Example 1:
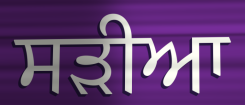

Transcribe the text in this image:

ਸੜੀਆ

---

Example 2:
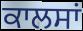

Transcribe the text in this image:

ਕਾਲਸਾਂ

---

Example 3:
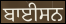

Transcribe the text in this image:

ਬਾਈਸਨ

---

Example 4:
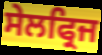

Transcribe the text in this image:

ਸੇਲਫ੍ਰਿਜ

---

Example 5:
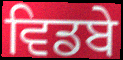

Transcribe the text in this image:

ਵਿਡਬੇ